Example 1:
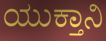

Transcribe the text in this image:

ಯುಕ್ತಾನಿ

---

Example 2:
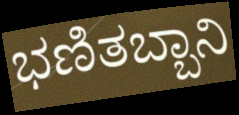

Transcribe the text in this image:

ಭಣಿತಬ್ಬಾನಿ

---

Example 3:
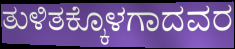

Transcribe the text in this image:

ತುಳಿತಕ್ಕೊಳಗಾದವರ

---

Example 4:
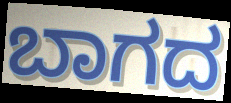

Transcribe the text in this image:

ಬಾಗದ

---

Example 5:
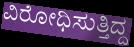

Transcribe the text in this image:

ವಿರೋಧಿಸುತ್ತಿದ್ದ